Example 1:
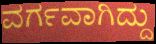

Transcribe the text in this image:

ವರ್ಗವಾಗಿದ್ದು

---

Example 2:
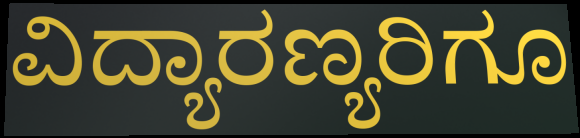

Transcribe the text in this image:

ವಿದ್ಯಾರಣ್ಯರಿಗೂ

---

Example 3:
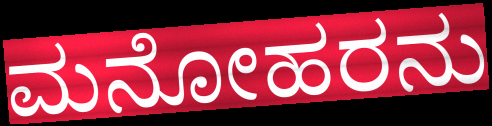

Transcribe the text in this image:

ಮನೋಹರನು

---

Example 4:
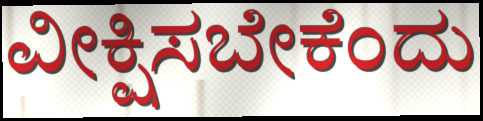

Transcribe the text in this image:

ವೀಕ್ಷಿಸಬೇಕೆಂದು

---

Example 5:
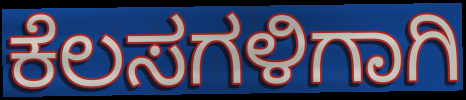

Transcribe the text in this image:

ಕೆಲಸಗಳಿಗಾಗಿ